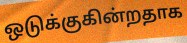
ஒடுக்குகின்றதாக